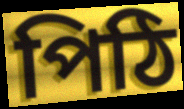
পিঠি